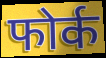
फोर्क